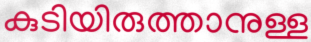
കുടിയിരുത്താനുള്ള